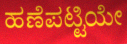
ಹಣೆಪಟ್ಟಿಯೇ